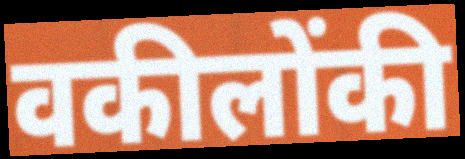
वकीलोंकी